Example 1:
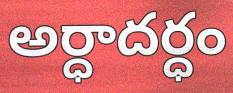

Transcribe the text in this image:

అర్ధాదర్ధం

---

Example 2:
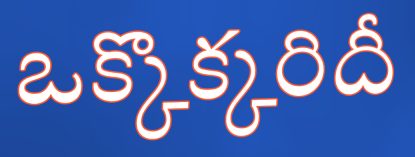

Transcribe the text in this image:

ఒక్కొక్కరిదీ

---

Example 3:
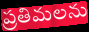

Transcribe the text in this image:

ప్రతిమలను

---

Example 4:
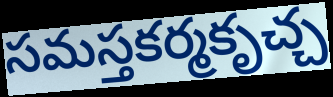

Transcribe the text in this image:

సమస్తకర్మకృచ్చ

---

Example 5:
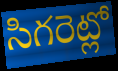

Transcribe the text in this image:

సిగరెట్లో